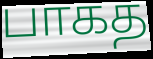
பாகத